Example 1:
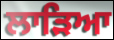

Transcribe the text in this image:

ਲਾੜਿਆ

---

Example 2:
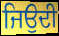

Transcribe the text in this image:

ਜਿਉਦੀ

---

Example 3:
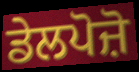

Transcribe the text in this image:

ਡੇਲਪੋਜ਼ੋ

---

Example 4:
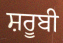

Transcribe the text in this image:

ਸ਼ਰੂਬੀ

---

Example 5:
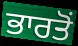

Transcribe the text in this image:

ਭਾਰਤੋਂ